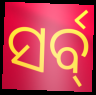
ସର୍ବ୍